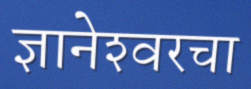
ज्ञानेश्वरचा